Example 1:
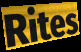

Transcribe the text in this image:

Rites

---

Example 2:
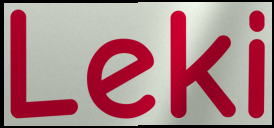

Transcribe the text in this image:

Leki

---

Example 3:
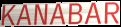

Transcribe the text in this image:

KANABAR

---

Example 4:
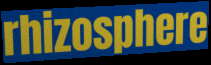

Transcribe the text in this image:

rhizosphere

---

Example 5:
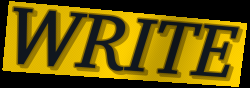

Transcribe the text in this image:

WRITE